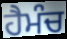
ਹੈਮੰਚ